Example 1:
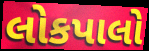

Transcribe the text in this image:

લોકપાલો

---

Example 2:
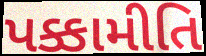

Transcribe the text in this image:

પક્કામીતિ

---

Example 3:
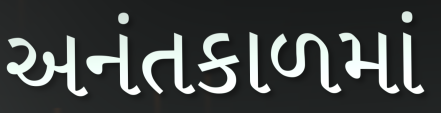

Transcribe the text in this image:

અનંતકાળમાં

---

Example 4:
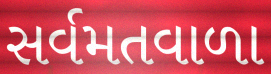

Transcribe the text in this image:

સર્વમતવાળા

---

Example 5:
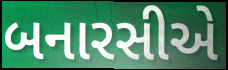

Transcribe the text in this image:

બનારસીએ